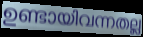
ഉണ്ടായിവന്നതല്ല